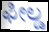
ಫೀಲ್ಡ